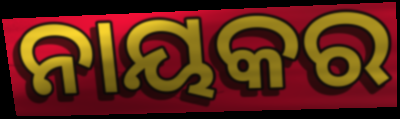
ନାୟକର